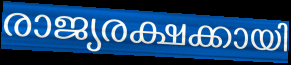
രാജ്യരക്ഷക്കായി